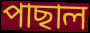
পাছাল